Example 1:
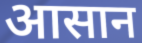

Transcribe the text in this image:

आसान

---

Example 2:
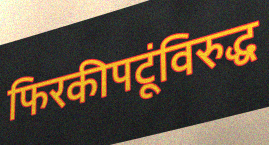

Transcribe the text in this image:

फिरकीपटूंविरुद्ध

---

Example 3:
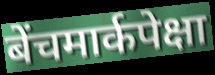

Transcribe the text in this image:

बेंचमार्कपेक्षा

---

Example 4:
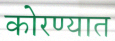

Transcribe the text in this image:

कोरण्यात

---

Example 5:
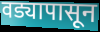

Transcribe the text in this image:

वड्यापासून